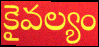
కైవల్యం